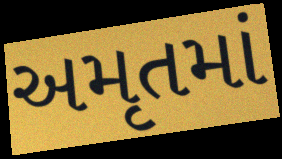
અમૃતમાં